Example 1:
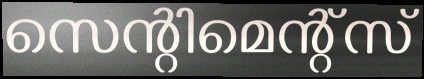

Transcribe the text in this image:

സെന്റിമെന്റ്സ്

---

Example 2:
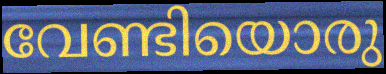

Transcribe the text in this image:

വേണ്ടിയൊരു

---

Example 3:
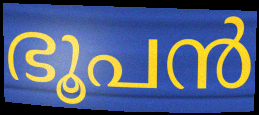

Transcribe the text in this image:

ഭൂപൻ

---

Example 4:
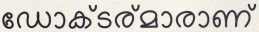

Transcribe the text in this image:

ഡോക്ടര്മാരാണ്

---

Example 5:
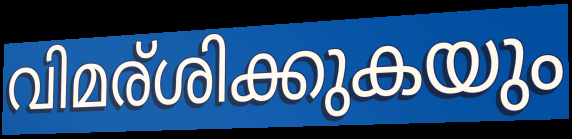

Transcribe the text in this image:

വിമര്ശിക്കുകയും